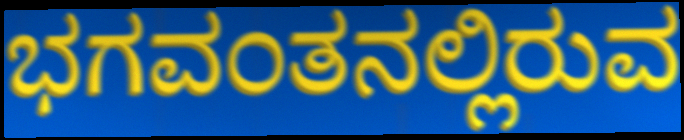
ಭಗವಂತನಲ್ಲಿರುವ